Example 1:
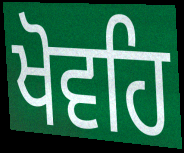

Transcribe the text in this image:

ਖੋਵਹਿ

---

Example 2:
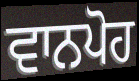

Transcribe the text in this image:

ਵਾਨਪੋਹ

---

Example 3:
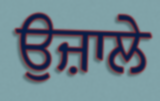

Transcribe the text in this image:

ਉਜ਼ਾਲੇ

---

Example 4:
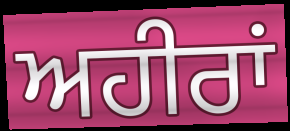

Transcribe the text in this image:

ਅਹੀਰਾਂ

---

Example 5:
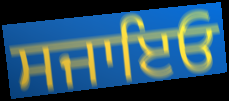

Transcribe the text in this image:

ਸਜਾਇਓ